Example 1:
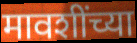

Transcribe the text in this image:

मावशींच्या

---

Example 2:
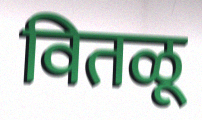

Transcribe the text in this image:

वितळू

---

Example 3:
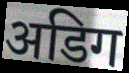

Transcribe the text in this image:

अडिग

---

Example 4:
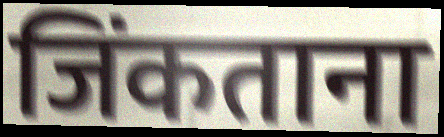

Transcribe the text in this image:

जिंकताना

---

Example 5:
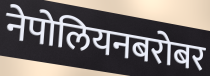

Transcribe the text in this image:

नेपोलियनबरोबर